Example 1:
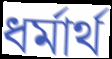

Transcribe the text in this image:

ধর্মার্থ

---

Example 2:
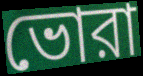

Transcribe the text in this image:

ভোরা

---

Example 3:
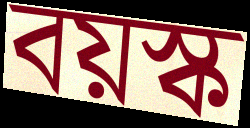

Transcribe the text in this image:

বয়স্ক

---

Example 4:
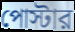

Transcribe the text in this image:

পোস্টার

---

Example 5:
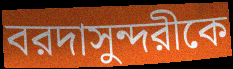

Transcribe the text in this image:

বরদাসুন্দরীকে